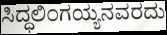
ಸಿದ್ಧಲಿಂಗಯ್ಯನವರದು